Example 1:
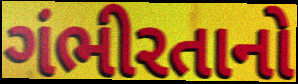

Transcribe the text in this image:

ગંભીરતાનો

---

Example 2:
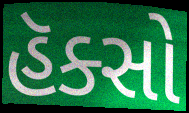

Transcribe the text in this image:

હૅક્સો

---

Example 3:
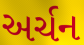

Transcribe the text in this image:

અર્ચન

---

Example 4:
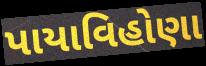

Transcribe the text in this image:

પાયાવિહોણા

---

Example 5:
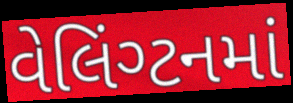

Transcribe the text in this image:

વેલિંગ્ટનમાં